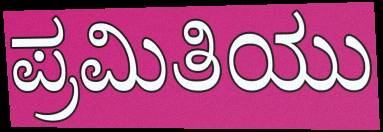
ಪ್ರಮಿತಿಯು